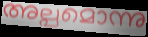
അല്പമൊന്നു